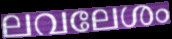
ലവലേശം